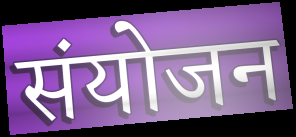
संयोजन